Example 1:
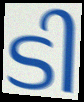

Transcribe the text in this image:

ടി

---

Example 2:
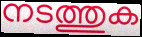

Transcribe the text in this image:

നടത്തുക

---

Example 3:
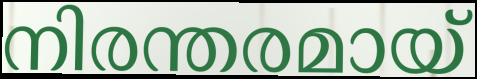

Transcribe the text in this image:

നിരന്തരമായ്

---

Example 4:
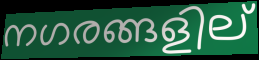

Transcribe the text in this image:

നഗരങ്ങളില്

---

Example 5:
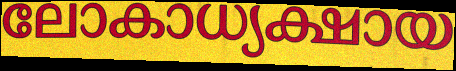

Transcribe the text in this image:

ലോകാധ്യക്ഷായ